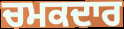
ਚਮਕਦਾਰ